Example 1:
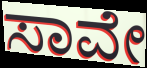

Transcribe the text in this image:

ಸಾವೇ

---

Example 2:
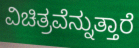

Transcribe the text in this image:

ವಿಚಿತ್ರವೆನ್ನುತ್ತಾರೆ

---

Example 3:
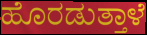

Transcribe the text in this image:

ಹೊರಡುತ್ತಾಳೆ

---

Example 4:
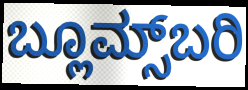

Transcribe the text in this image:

ಬ್ಲೂಮ್ಸ್‌ಬರಿ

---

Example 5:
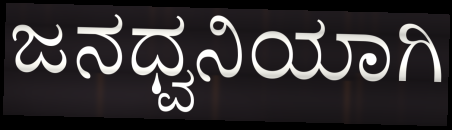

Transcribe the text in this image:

ಜನಧ್ವನಿಯಾಗಿ